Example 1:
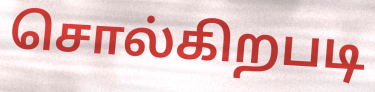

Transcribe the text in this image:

சொல்கிறபடி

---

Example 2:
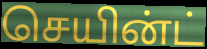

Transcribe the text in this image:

செயின்ட்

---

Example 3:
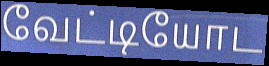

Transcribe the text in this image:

வேட்டியோட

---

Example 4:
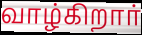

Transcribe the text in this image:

வாழ்கிறார்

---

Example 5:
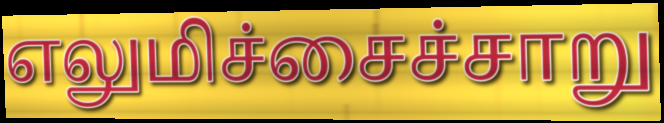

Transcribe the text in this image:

எலுமிச்சைச்சாறு